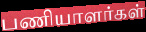
பணியாளர்கள்